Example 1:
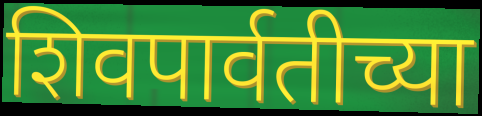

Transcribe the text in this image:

शिवपार्वतीच्या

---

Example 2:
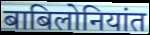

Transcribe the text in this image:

बाबिलोनियांत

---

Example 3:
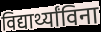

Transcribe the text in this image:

विद्यार्थ्यांविना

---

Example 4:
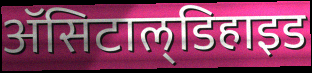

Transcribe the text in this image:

ॲसिटाल्डिहाइड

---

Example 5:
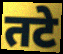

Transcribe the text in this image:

तटे